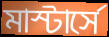
মাস্টার্সে